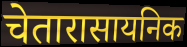
चेतारासायनिक